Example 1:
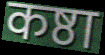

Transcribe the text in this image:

कष्ठा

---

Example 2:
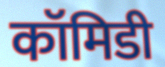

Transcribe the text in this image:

कॉमिडी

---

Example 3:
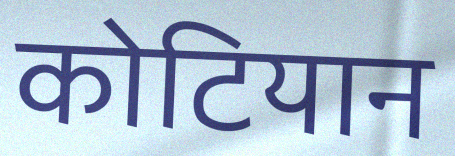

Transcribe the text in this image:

कोटियान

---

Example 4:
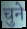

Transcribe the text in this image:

चुने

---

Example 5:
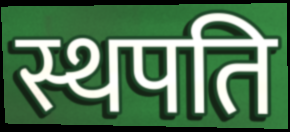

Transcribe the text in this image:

स्थपति